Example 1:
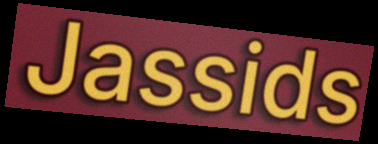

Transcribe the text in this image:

Jassids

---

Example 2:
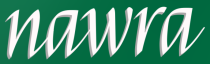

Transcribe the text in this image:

nawra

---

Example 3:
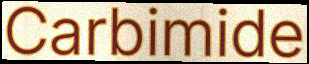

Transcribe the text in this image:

Carbimide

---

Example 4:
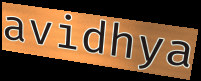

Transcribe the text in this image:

avidhya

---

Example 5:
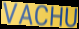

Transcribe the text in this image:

VACHU